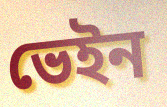
ভেইন